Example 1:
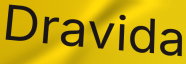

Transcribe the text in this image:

Dravida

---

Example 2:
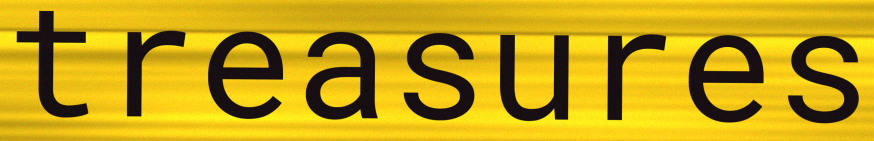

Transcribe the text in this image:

treasures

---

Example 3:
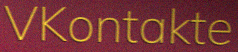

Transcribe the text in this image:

VKontakte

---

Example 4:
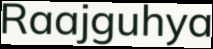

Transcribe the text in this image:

Raajguhya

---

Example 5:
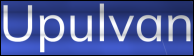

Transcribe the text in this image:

Upulvan